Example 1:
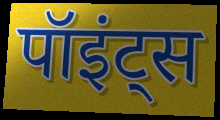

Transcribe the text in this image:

पॉइंट्स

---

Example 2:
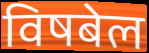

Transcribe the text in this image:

विषबेल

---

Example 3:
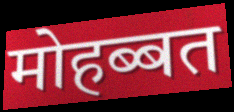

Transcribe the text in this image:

मोहब्बत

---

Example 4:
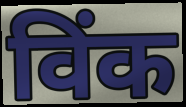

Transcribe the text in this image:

विंक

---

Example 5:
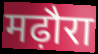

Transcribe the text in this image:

मढ़ौरा